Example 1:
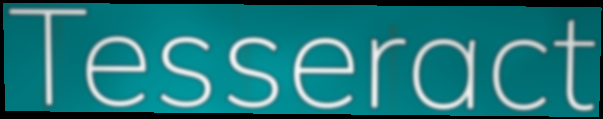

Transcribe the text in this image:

Tesseract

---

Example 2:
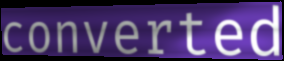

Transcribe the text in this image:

converted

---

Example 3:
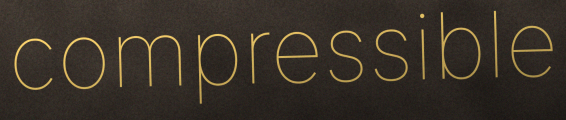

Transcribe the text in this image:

compressible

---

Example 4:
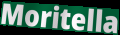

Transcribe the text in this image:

Moritella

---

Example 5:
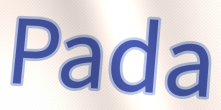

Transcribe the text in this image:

Pada